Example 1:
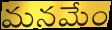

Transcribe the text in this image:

మనమేం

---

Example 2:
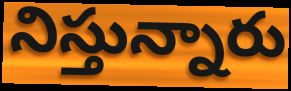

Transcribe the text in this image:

నిస్తున్నారు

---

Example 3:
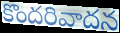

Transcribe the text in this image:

కొందరివాదన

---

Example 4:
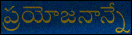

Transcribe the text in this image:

ప్రయోజనాన్నే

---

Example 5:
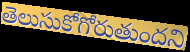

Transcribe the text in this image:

తెలుసుకోగోరుతుందని